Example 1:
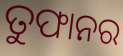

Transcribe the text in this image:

ତୁଫାନର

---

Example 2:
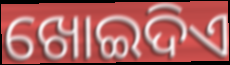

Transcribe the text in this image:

ଖୋଇଦିଏ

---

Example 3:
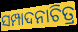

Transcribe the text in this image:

ସମ୍ପାଦନାଚିତ୍ର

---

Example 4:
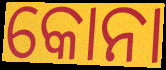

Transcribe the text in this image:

କୋନା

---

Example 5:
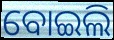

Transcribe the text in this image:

ବୋଇଲି